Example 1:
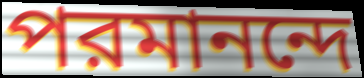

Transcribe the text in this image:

পরমানন্দে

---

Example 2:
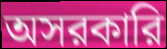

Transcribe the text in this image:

অসরকারি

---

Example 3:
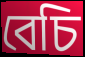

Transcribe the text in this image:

বেচি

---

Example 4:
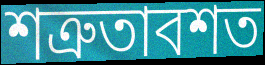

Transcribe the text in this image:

শত্রুতাবশত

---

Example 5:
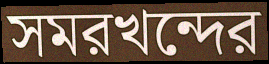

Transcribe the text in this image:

সমরখন্দের